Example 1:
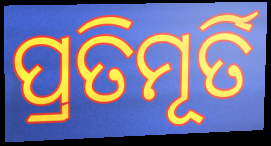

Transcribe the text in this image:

ପ୍ରତିମୂର୍ତି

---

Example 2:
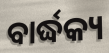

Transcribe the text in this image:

ବାର୍ଦ୍ଧକ୍ୟ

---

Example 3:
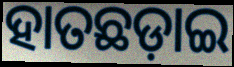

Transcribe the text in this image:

ହାତଛଡ଼ାଇ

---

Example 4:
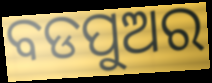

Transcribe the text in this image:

ବଡପୁଅର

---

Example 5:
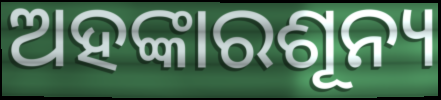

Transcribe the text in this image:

ଅହଙ୍କାରଶୂନ୍ୟ